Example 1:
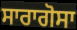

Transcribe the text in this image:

ਸਾਰਾਗੋਸਾ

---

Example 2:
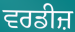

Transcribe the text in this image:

ਵਰਡੀਜ਼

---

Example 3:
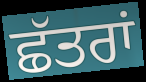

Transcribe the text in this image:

ਛੱਤਰਾਂ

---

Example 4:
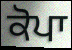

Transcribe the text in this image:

ਕੋਪਾ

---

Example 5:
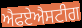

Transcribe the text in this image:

ਐਫਏਐਸਟੀਗ